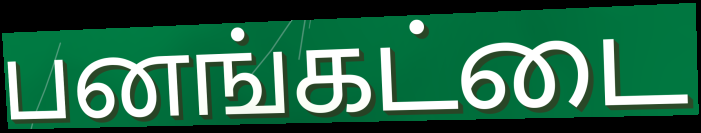
பனங்கட்டை